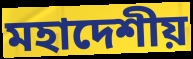
মহাদেশীয়